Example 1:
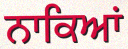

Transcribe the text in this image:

ਨਾਕਿਆਂ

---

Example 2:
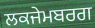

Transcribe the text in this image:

ਲਕਜੇਮਬਰਗ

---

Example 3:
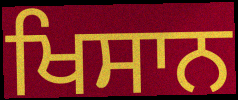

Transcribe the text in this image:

ਖਿਸਾਨ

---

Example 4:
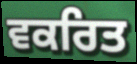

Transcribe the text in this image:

ਵਕਰਿਤ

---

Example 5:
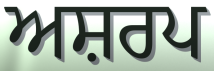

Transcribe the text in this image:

ਅਸ਼ਰਪ